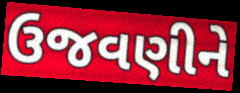
ઉજવણીને